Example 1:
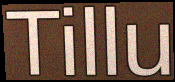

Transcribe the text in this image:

Tillu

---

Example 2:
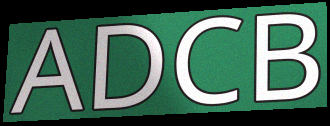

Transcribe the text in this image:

ADCB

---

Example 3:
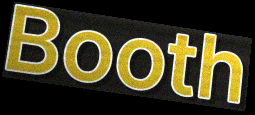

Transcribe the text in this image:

Booth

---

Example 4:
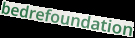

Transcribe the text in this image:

bedrefoundation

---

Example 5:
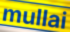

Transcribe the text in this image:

mullai